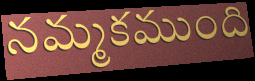
నమ్మకముంది